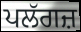
ਪਲੱਗਜ਼